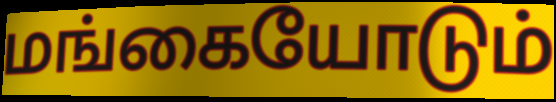
மங்கையோடும்